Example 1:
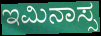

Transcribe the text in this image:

ಇಮಿನಾಸ್ಸ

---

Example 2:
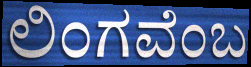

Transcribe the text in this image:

ಲಿಂಗವೆಂಬ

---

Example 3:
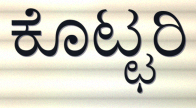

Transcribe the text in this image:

ಕೊಟ್ಟರಿ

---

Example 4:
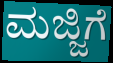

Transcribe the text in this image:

ಮಜ್ಜಿಗೆ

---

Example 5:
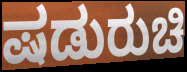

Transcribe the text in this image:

ಷಡುರುಚಿ